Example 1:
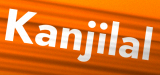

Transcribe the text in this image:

Kanjilal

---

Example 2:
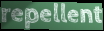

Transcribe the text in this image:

repellent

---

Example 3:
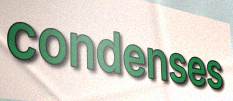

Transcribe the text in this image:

condenses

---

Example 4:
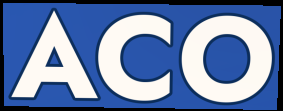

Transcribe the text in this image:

ACO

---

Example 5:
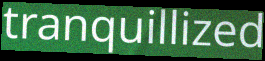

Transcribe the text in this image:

tranquillized